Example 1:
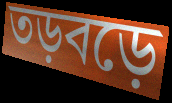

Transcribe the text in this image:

তড়বড়ে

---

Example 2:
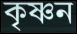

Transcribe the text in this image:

কৃষ্ণন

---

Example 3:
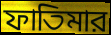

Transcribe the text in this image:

ফাতিমার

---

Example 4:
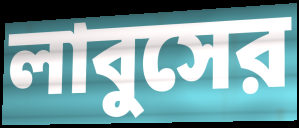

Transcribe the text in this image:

লাবুসের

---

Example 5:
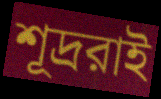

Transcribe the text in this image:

শূদ্ররাই